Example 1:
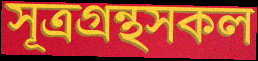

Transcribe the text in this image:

সূত্রগ্রন্থসকল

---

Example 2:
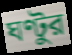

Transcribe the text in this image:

ঘণ্টুর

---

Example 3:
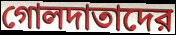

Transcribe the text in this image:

গোলদাতাদের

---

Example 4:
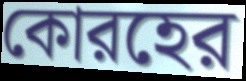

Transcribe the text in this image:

কোরহের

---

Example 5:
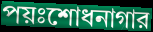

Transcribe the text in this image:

পয়ঃশোধনাগার